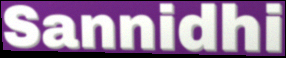
Sannidhi